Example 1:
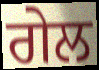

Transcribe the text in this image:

ਗੇਲ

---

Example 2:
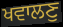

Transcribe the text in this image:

ਖਵਾਲਣੁ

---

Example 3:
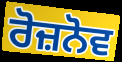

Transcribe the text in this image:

ਰੋਜ਼ਨੋਵ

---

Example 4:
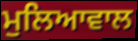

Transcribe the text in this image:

ਮੁਲਿਆਵਾਲ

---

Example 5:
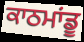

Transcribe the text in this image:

ਕਾਠਮਾਂਡੂ